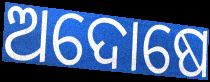
ଅଦୋଷେ